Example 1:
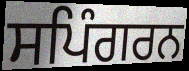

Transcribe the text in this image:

ਸਪਿੰਗਰਨ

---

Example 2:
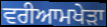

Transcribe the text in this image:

ਵਰੀਆਮਖੇੜਾ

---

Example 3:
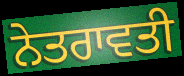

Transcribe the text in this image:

ਨੇਤਰਾਵਤੀ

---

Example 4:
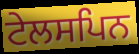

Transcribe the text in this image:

ਟੇਲਸਪਿਨ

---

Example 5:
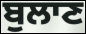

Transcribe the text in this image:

ਬੁਲਾਣ